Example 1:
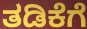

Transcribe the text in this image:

ತಡಿಕೆಗೆ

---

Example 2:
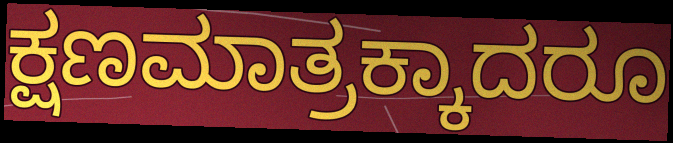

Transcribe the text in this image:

ಕ್ಷಣಮಾತ್ರಕ್ಕಾದರೂ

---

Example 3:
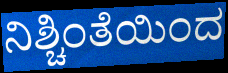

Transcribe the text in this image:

ನಿಶ್ಚಿಂತೆಯಿಂದ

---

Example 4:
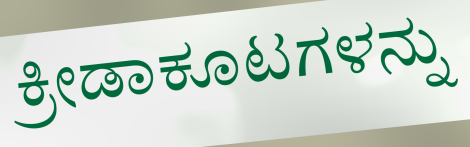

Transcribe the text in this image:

ಕ್ರೀಡಾಕೂಟಗಳನ್ನು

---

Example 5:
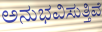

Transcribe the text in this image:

ಅನುಭವಿಸುತ್ತಿವೆ